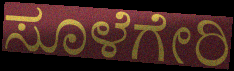
ಸೂಳೆಗೇರಿ